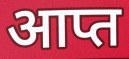
आप्त